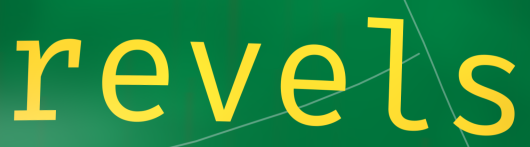
revels